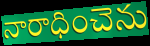
నారాధించెను